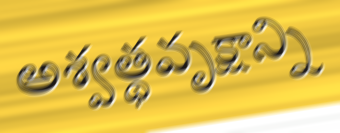
అశ్వత్థవృక్షాన్ని